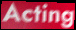
Acting